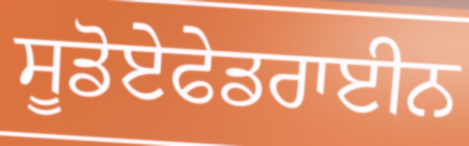
ਸੂਡੋਏਫੇਡਰਾਈਨ